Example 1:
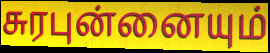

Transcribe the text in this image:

சுரபுன்னையும்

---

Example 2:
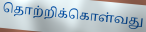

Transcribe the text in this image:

தொற்றிக்கொள்வது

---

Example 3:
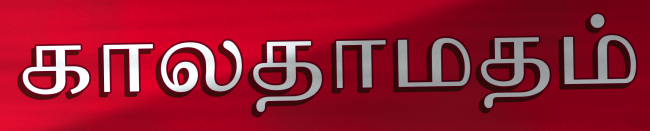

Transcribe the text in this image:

காலதாமதம்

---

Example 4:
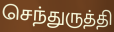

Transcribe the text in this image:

செந்துருத்தி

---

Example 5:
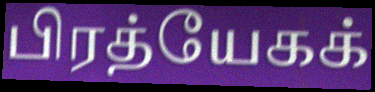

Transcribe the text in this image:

பிரத்யேகக்